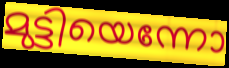
മുട്ടിയെന്നോ